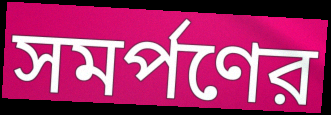
সমর্পণের